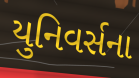
યુનિવર્સના